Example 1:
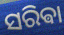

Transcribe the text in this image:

ସରିଵା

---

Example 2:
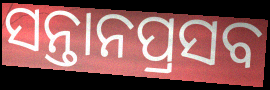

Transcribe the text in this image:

ସନ୍ତାନପ୍ରସବ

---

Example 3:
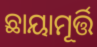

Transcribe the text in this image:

ଛାୟାମୂର୍ତ୍ତି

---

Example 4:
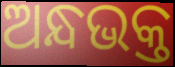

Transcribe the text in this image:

ଅନ୍ଧଭକ୍ତ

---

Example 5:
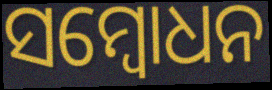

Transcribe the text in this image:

ସମ୍ବୋଧନ